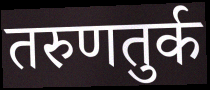
तरुणतुर्क